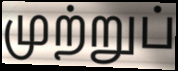
முற்றுப்